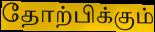
தோற்பிக்கும்